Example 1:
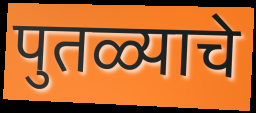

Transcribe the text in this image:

पुतळ्याचे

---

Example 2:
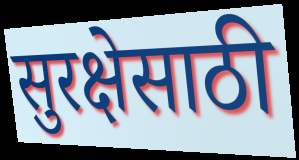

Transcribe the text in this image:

सुरक्षेसाठी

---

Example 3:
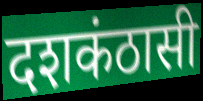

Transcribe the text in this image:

दशकंठासी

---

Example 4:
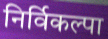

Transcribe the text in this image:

निर्विकल्पा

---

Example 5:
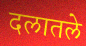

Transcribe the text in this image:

दलातले